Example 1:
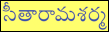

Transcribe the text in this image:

సీతారామశర్మ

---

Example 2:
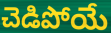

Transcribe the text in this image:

చెడిపోయే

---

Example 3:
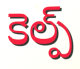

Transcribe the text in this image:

కెల్ప్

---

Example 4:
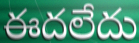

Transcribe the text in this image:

ఈదలేదు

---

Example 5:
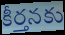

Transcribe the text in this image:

కీర్తనకు